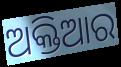
ଅକ୍ତିଆର